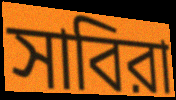
সাবিরা